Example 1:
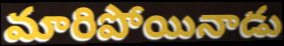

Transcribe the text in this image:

మారిపోయినాడు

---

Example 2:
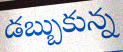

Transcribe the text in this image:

డబ్బుకున్న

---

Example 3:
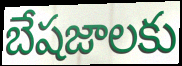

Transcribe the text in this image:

బేషజాలకు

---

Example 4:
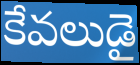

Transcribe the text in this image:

కేవలుడై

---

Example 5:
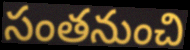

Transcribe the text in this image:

సంతనుంచి